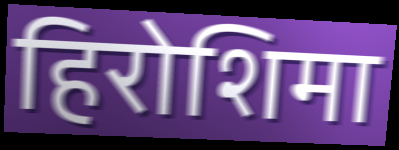
हिरोशिमा